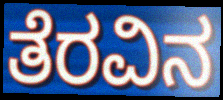
ತೆರವಿನ